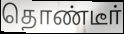
தொண்டீர்